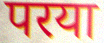
परया